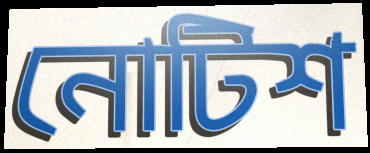
নোটিশ